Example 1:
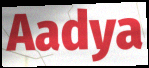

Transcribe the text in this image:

Aadya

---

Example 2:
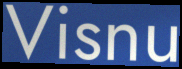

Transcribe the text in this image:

Visnu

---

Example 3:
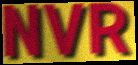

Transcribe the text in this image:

NVR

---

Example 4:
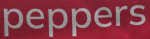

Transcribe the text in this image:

peppers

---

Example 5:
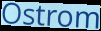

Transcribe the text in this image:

Ostrom